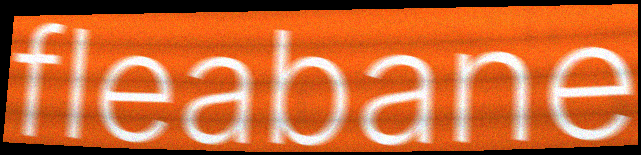
fleabane